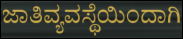
ಜಾತಿವ್ಯವಸ್ಥೆಯಿಂದಾಗಿ